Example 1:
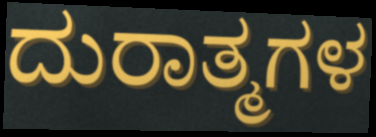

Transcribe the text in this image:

ದುರಾತ್ಮಗಳ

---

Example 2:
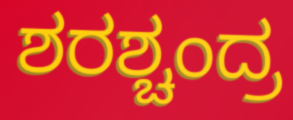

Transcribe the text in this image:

ಶರಶ್ಚಂದ್ರ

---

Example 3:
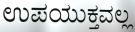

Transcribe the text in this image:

ಉಪಯುಕ್ತವಲ್ಲ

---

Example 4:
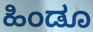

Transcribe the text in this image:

ಹಿಂಡೂ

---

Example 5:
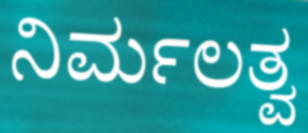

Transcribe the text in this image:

ನಿರ್ಮಲತ್ವ